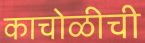
काचोळीची